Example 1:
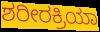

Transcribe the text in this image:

ಶರೀರಕ್ರಿಯಾ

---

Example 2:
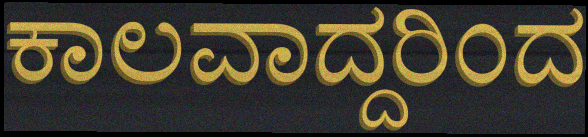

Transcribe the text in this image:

ಕಾಲವಾದ್ದರಿಂದ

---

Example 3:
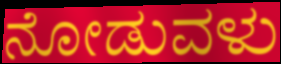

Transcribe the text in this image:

ನೋಡುವಳು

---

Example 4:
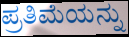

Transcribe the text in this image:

ಪ್ರತಿಮೆಯನ್ನು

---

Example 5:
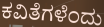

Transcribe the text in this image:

ಕವಿತೆಗಳೆಂದು